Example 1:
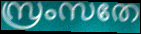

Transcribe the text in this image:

സ്രംസതേ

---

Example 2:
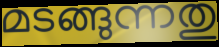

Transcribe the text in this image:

മടങ്ങുന്നതു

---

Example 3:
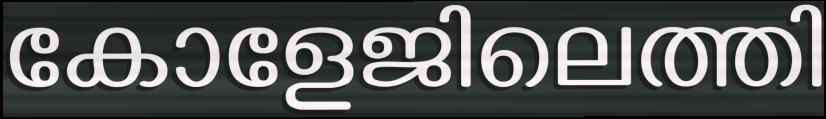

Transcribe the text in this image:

കോളേജിലെത്തി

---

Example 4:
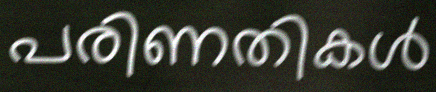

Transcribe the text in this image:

പരിണതികൾ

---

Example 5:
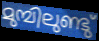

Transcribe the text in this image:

മുമ്പിലുണ്ടു്